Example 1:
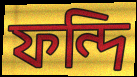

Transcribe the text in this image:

ফন্দি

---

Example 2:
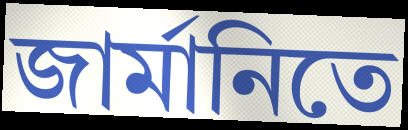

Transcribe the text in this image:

জার্মানিতে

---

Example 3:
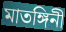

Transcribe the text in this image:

মাতঙ্গিনী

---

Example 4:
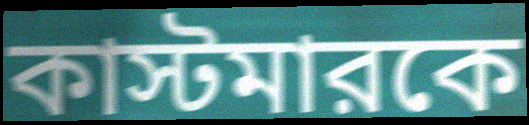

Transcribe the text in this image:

কাস্টমারকে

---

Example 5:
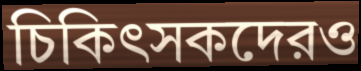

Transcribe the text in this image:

চিকিৎসকদেরও